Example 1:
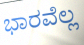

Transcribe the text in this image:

ಭಾರವೆಲ್ಲ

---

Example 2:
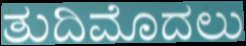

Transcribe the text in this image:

ತುದಿಮೊದಲು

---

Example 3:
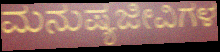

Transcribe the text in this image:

ಮನುಷ್ಯಜೀವಿಗಳ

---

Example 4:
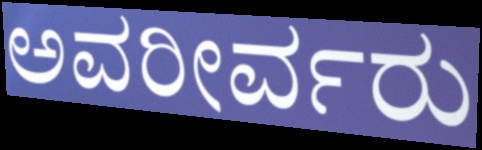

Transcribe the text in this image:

ಅವರೀರ್ವರು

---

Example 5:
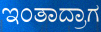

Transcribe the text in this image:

ಇಂತಾದ್ರಾಗ